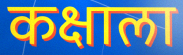
कक्षाला